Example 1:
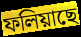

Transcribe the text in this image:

ফলিয়াছে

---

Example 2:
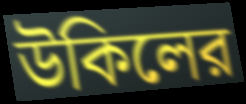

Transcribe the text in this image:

উকিলের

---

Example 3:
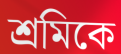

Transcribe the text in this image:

শ্রমিকে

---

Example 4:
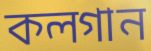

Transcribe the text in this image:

কলগান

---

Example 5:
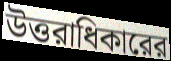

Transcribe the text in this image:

উত্তরাধিকারের